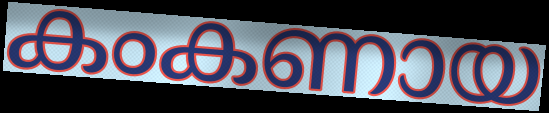
കംകണായ